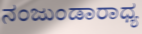
ನಂಜುಂಡಾರಾಧ್ಯ